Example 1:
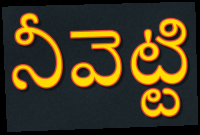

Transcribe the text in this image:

నీవెట్టి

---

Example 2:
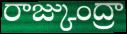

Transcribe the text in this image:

రాజ్కుంద్రా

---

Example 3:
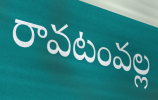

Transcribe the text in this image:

రావటంవల్ల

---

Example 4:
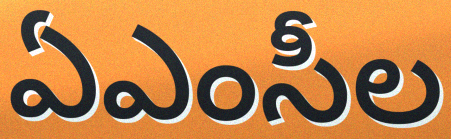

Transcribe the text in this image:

ఏఎంసీల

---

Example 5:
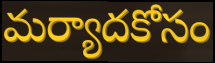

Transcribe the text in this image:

మర్యాదకోసం